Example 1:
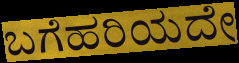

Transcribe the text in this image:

ಬಗೆಹರಿಯದೇ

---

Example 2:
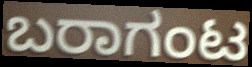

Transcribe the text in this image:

ಬರಾಗಂಟ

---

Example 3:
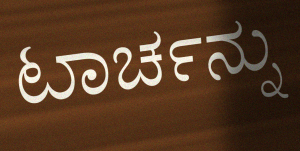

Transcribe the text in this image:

ಟಾರ್ಚನ್ನು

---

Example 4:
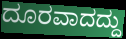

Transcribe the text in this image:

ದೂರವಾದದ್ದು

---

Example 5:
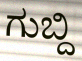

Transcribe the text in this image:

ಗುಬ್ದಿ